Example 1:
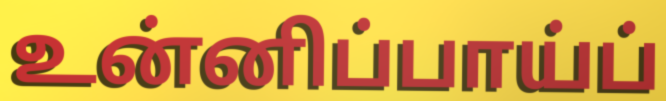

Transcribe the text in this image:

உன்னிப்பாய்ப்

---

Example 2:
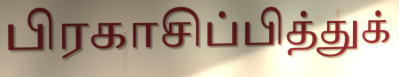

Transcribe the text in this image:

பிரகாசிப்பித்துக்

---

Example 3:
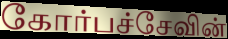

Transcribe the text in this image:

கோர்பச்சேவின்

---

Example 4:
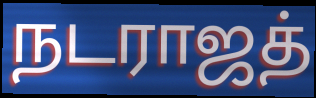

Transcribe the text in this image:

நடராஜத்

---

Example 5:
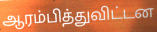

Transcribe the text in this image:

ஆரம்பித்துவிட்டன